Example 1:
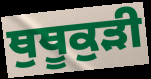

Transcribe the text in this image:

ਥੁਥੂਕੁੜੀ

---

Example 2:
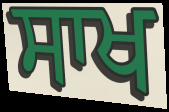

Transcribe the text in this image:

ਸਾਖ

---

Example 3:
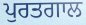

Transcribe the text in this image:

ਪੁਰਤਗਾਲ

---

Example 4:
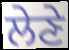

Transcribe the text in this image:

ਲੇਣੇ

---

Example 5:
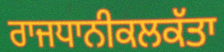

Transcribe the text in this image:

ਰਾਜਧਾਨੀਕਲਕੱਤਾ